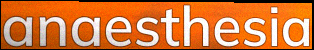
anaesthesia